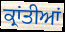
ਕ੍ਰਾਂਤੀਆਂ